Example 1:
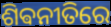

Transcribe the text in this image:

ଶିଵନୀତିରେ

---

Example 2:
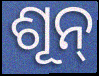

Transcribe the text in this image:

ଶୂନ୍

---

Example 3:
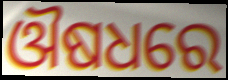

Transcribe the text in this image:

ଔଷଧରେ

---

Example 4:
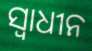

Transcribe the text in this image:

ସ୍ୱାଧୀନ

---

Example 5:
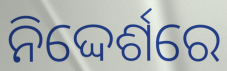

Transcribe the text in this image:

ନିଦ୍ଦେର୍ଶରେ